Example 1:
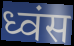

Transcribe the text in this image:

ध्वंस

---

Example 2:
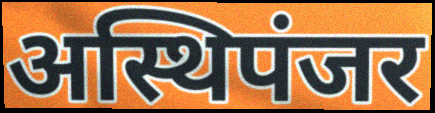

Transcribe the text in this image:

अस्थिपंजर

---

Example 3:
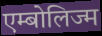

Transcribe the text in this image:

एम्बोलिज्म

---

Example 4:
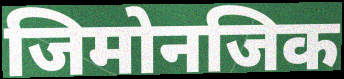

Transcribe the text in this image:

जिमोनजिक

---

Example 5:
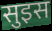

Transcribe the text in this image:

सुइस